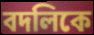
বদলিকে